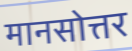
मानसोत्तर